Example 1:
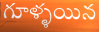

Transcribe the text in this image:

గూళ్ళయిన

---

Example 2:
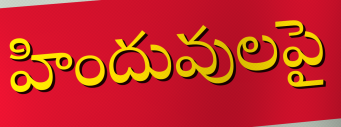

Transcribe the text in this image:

హిందువులపై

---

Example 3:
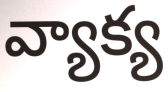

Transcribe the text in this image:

వ్యాక్య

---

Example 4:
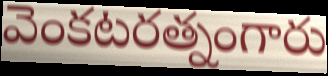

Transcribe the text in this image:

వెంకటరత్నంగారు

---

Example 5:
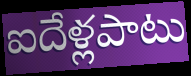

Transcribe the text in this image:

ఐదేళ్లపాటు